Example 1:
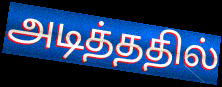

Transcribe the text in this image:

அடித்ததில்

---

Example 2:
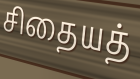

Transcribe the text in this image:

சிதையத்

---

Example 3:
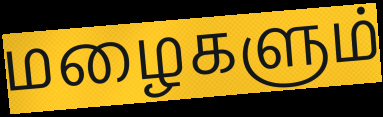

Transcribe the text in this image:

மழைகளும்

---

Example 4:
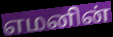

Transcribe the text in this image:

எமனின்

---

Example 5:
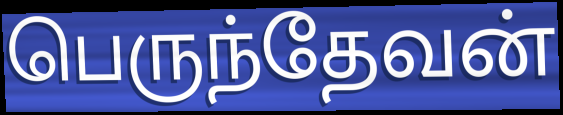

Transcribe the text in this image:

பெருந்தேவன்